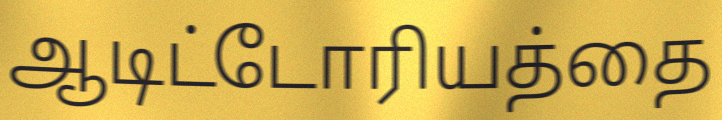
ஆடிட்டோரியத்தை